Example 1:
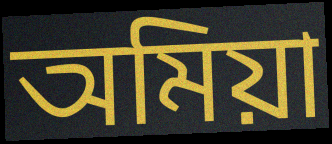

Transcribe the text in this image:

অমিয়া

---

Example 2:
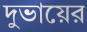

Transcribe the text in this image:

দুভায়ের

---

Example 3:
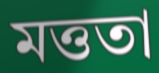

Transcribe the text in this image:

মত্ততা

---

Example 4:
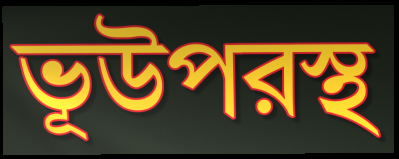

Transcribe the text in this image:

ভূউপরস্থ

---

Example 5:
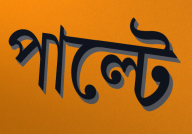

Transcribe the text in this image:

পাল্টে